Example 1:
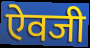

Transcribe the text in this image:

ऐवजी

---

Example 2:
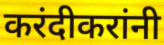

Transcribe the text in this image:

करंदीकरांनी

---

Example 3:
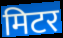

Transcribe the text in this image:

मिटर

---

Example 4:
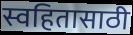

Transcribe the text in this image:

स्वहितासाठी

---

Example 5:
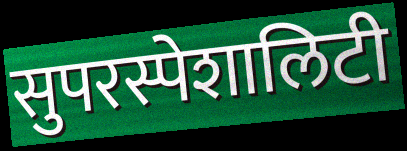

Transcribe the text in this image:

सुपरस्पेशालिटी